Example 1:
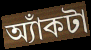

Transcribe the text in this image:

অ্যাঁকটা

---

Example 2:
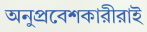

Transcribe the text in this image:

অনুপ্রবেশকারীরাই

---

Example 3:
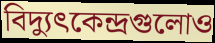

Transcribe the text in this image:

বিদ্যুৎকেন্দ্রগুলোও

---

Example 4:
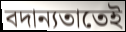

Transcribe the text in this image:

বদান্যতাতেই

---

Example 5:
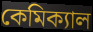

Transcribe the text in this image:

কেমিক্যাল